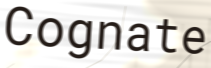
Cognate